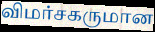
விமர்சகருமான